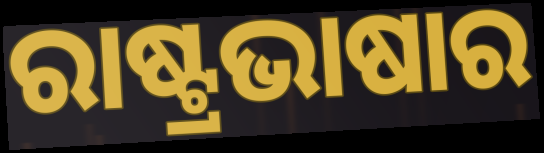
ରାଷ୍ଟ୍ରଭାଷାର